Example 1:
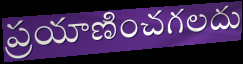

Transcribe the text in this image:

ప్రయాణించగలదు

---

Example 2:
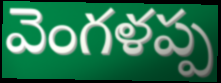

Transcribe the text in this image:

వెంగళప్ప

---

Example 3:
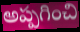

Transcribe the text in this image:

అప్పగించి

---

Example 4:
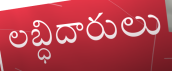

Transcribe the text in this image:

లబ్ధిదారులు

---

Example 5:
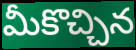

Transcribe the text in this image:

మీకొచ్చిన